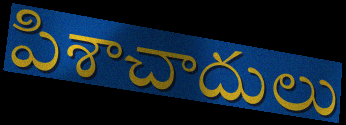
పిశాచాదులు